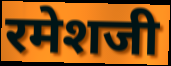
रमेशजी